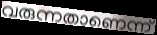
വരുന്നതാണെന്ന്